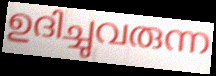
ഉദിച്ചുവരുന്ന